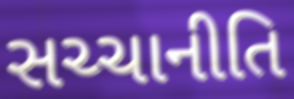
સચ્ચાનીતિ